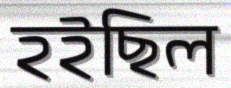
হইছিল